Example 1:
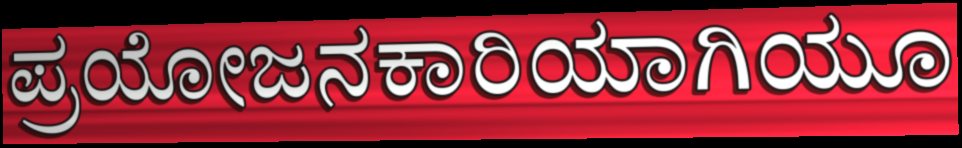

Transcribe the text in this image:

ಪ್ರಯೋಜನಕಾರಿಯಾಗಿಯೂ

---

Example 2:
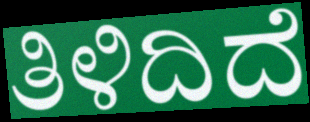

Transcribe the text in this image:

ತಿಳಿದಿದೆ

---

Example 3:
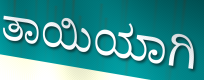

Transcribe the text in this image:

ತಾಯಿಯಾಗಿ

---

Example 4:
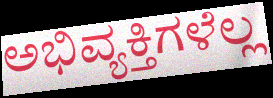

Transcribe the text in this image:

ಅಭಿವ್ಯಕ್ತಿಗಳೆಲ್ಲ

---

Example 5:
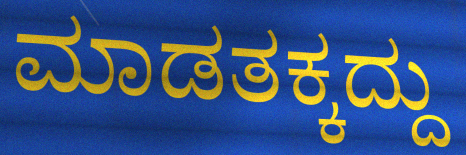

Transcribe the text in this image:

ಮಾಡತಕ್ಕದ್ದು